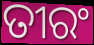
ତୀରଂ